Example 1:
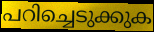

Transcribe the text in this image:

പറിച്ചെടുക്കുക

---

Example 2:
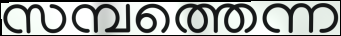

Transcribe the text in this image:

സമ്പത്തെന്ന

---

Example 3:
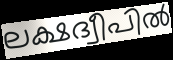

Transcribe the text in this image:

ലക്ഷദ്വീപിൽ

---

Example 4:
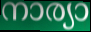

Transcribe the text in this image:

നാര്യാ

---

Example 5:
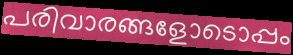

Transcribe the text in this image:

പരിവാരങ്ങളോടൊപ്പം